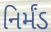
નિર્મંડ